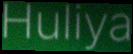
Huliya